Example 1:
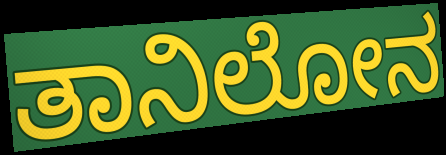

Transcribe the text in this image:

ತಾನಿಲೋನ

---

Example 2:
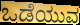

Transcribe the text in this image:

ಒಡೆಯುವ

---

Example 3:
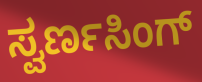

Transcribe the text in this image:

ಸ್ವರ್ಣಸಿಂಗ್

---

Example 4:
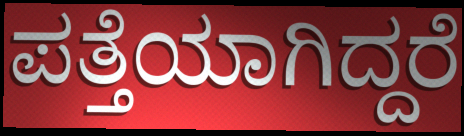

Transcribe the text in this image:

ಪತ್ತೆಯಾಗಿದ್ದರೆ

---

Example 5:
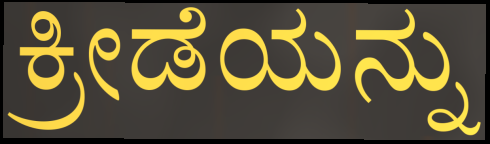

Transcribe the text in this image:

ಕ್ರೀಡೆಯನ್ನು